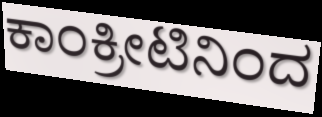
ಕಾಂಕ್ರೀಟಿನಿಂದ